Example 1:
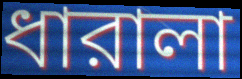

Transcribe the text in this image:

ধারালা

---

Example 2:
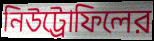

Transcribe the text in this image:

নিউট্রোফিলের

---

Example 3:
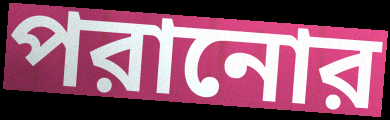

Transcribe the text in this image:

পরানোর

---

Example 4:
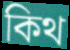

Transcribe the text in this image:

কিথ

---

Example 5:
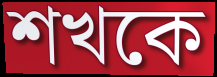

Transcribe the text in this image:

শখকে